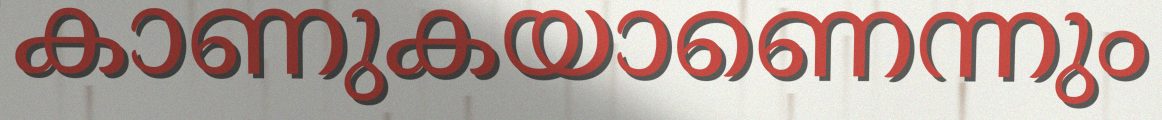
കാണുകയാണെന്നും